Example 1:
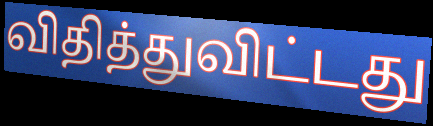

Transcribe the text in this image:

விதித்துவிட்டது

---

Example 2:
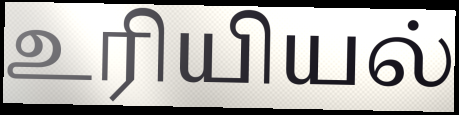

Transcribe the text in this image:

உரியியல்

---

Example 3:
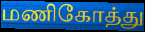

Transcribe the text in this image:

மணிகோத்து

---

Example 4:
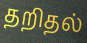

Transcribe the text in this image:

தறிதல்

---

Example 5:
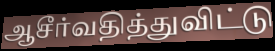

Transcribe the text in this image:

ஆசீர்வதித்துவிட்டு